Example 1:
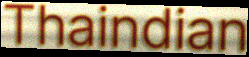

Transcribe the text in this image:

Thaindian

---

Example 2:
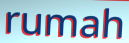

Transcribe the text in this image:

rumah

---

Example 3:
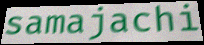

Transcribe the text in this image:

samajachi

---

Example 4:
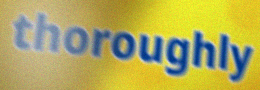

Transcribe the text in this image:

thoroughly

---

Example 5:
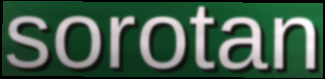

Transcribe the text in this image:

sorotan